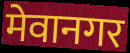
मेवानगर